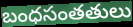
బంధసంతతులు